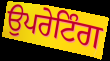
ਉਪਰੇਟਿੰਗ